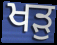
ਖੜੁ